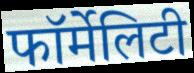
फॉर्मेलिटी